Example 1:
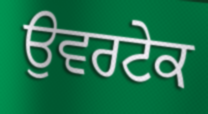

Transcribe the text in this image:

ਉਵਰਟੇਕ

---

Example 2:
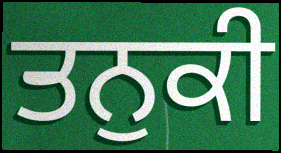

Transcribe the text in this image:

ਤਨੁਕੀ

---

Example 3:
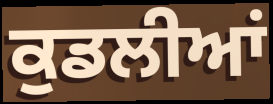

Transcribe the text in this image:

ਕੁਡਲੀਆਂ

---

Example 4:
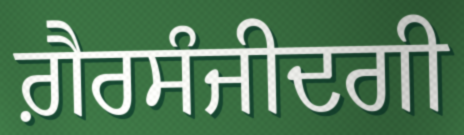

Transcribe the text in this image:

ਗ਼ੈਰਸੰਜੀਦਗੀ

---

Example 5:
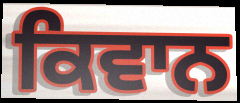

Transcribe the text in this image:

ਕਿਵਾਨ